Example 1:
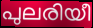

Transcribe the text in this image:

പുലരിയീ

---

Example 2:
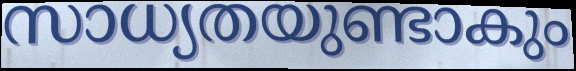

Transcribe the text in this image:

സാധ്യതയുണ്ടാകും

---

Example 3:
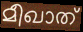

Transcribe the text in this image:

മീഖാത്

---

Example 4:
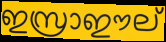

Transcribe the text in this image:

ഇസ്രാഈല്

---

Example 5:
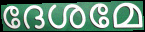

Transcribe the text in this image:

ദേശമേ